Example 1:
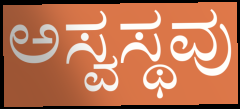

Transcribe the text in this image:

ಅಸ್ವಸ್ಥವು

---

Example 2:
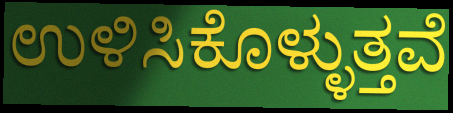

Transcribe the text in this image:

ಉಳಿಸಿಕೊಳ್ಳುತ್ತವೆ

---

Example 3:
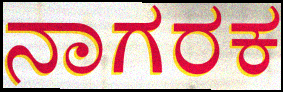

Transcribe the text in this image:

ನಾಗರಕ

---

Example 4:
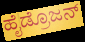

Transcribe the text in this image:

ಹೈಡ್ರೊಜನ್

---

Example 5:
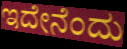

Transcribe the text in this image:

ಇದೇನೆಂದು